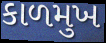
કાળમુખ